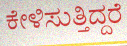
ಕೇಳಿಸುತ್ತಿದ್ದರೆ